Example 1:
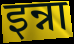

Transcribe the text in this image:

इन्ना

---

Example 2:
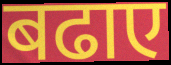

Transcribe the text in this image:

बढाए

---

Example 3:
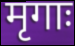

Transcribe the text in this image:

मृगाः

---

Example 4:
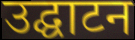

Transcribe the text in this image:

उद्घाटन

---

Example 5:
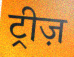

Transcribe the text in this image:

ट्रीज़